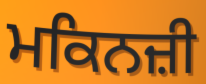
ਮਕਿਨਜ਼ੀ